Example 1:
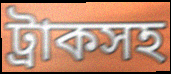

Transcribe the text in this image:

ট্রাকসহ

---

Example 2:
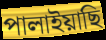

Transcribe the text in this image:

পালাইয়াছি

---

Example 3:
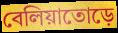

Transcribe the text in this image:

বেলিয়াতোড়ে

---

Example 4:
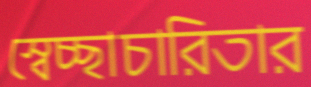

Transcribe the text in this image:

স্বেচ্ছাচারিতার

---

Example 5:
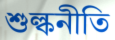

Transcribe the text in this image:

শুল্কনীতি